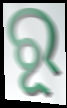
ରୂ